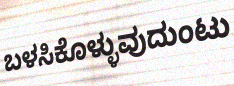
ಬಳಸಿಕೊಳ್ಳುವುದುಂಟು